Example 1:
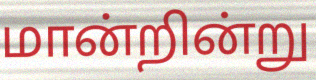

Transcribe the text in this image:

மான்றின்று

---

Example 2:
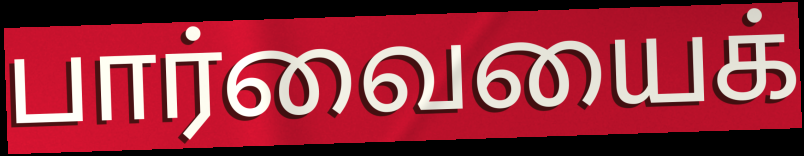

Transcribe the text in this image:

பார்வையைக்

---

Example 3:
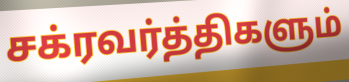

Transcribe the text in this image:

சக்ரவர்த்திகளும்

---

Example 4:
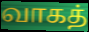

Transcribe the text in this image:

வாகத்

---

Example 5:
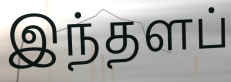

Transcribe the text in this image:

இந்தளப்